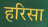
हरिसा